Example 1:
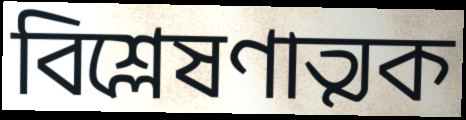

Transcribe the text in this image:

বিশ্লেষণাত্মক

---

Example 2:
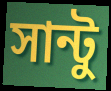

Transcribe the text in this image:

সান্টু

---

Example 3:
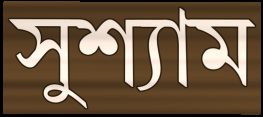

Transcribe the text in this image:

সুশ্যাম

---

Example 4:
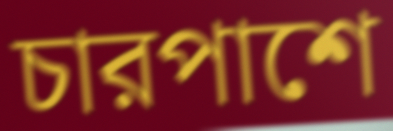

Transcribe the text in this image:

চারপাশে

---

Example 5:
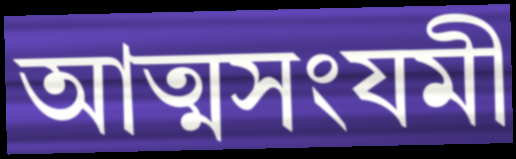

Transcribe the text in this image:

আত্মসংযমী